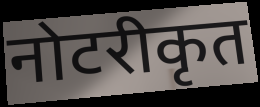
नोटरीकृत